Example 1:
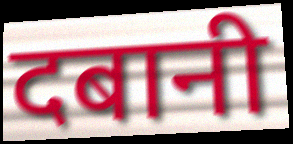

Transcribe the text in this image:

दबानी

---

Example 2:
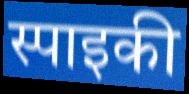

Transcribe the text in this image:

स्पाइकी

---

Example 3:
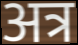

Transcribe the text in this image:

अत्र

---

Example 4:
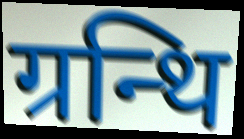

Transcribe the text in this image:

ग्रन्थि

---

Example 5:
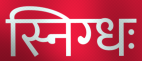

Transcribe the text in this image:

स्निग्धः